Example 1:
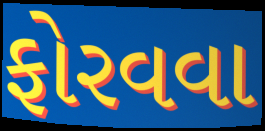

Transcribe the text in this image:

ફોરવવા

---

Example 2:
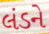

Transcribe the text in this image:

લંડને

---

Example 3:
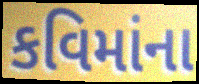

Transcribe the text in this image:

કવિમાંના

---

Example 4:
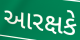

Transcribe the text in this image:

આરક્ષકે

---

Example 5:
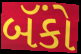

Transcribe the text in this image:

બૅંકો